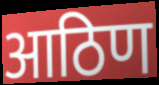
आठिण